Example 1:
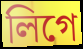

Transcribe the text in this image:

লিগে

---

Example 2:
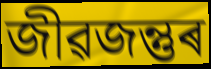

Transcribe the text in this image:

জীৱজন্তুৰ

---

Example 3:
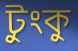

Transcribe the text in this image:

টুংকু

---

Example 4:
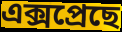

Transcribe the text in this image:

এক্সপ্ৰেছে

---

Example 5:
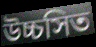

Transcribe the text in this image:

উচ্চসিত